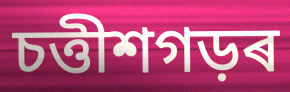
চত্তীশগড়ৰ